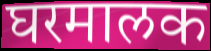
घरमालक